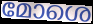
മോശെ